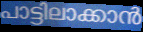
പാട്ടിലാക്കാൻ